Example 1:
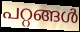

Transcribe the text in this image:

പറ്റങ്ങൾ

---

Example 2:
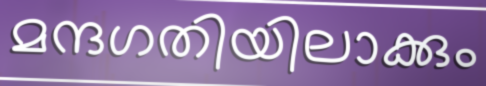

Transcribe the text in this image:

മന്ദഗതിയിലാക്കും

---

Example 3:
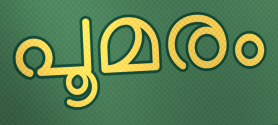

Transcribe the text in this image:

പൂമരം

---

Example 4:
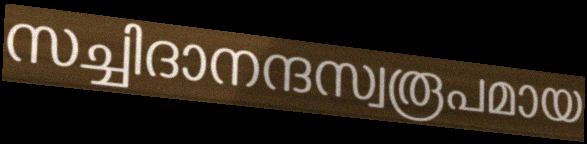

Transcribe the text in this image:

സച്ചിദാനന്ദസ്വരൂപമായ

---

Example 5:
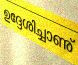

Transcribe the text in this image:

ഉദ്ദേശിച്ചാണു്